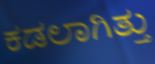
ಕಡಲಾಗಿತ್ತು